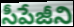
సీపేజీని